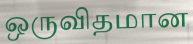
ஒருவிதமான